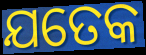
ଯତେକ